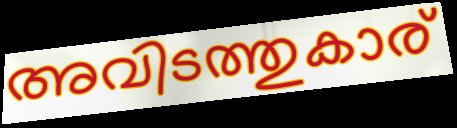
അവിടത്തുകാര്